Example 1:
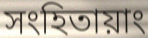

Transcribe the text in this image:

সংহিতায়াং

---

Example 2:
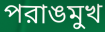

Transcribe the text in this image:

পরাঙমুখ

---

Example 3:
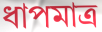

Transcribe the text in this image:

ধাপমাত্র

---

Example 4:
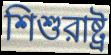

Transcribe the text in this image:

শিশুরাষ্ট্র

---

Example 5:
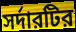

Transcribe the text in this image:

সর্দারটির